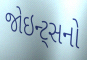
જોઇન્ટ્સનો